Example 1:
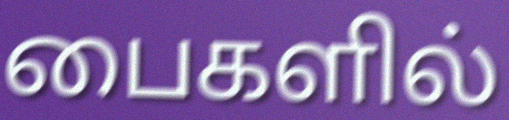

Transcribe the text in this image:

பைகளில்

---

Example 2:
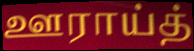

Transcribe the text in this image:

ஊராய்த்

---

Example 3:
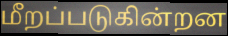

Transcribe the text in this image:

மீறப்படுகின்றன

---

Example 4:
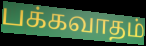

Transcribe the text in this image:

பக்கவாதம்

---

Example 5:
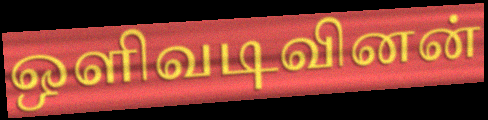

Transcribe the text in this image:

ஒளிவடிவினன்